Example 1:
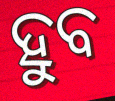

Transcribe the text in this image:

ହୁବ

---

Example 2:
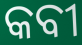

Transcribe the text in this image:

କବୀ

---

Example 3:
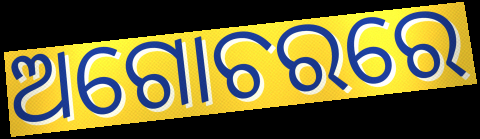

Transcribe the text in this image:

ଅଗୋଚରରେ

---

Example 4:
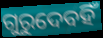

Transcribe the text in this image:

ଗୁରୁଦେବହିଁ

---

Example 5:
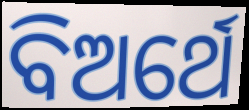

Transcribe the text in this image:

ବିଅର୍ଥେ